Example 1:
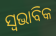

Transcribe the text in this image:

ସ୍ୱଭାବିକ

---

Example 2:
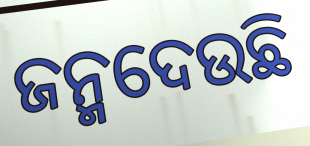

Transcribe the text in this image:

ଜନ୍ମଦେଉଛି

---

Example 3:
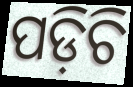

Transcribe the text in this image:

ପଡ଼ିଚି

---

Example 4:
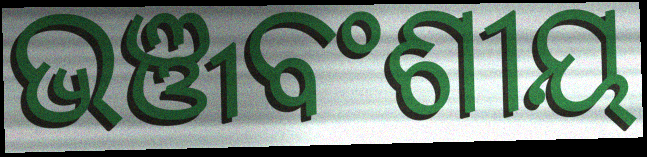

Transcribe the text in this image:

ଭଞ୍ଜବଂଶୀୟ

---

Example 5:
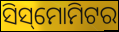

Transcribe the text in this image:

ସିସ୍‌ମୋମିଟର